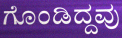
ಗೊಂಡಿದ್ದವು